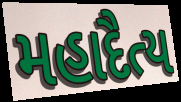
મહાદૈત્ય